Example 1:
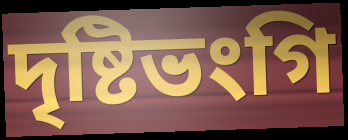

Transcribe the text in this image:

দৃষ্টিভংগি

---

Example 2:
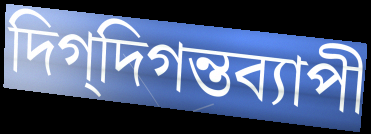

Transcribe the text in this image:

দিগ্‌দিগন্তব্যাপী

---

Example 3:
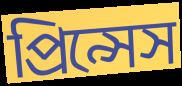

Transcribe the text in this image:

প্রিন্সেস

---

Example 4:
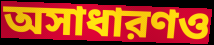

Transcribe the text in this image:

অসাধারণও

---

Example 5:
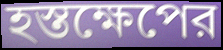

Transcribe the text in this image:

হস্তক্ষেপের